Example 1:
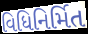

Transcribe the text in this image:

વિધિનિર્મિત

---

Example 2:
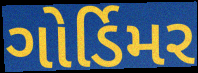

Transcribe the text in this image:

ગોર્ડિમર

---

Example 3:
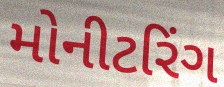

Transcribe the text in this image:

મોનીટરિંગ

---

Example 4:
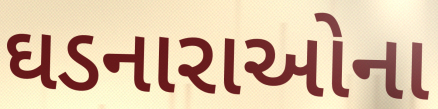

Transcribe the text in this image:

ઘડનારાઓના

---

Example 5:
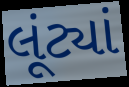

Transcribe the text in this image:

લૂંટ્યાં